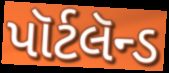
પૉર્ટલૅન્ડ